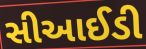
સીઆઈડી